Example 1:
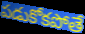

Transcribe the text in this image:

పడుకోకపోతే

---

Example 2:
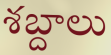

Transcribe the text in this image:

శబ్దాలు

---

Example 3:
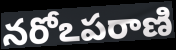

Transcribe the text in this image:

నరోఽపరాణి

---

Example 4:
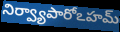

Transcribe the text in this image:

నిర్వ్యాపారోఽహమ్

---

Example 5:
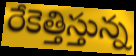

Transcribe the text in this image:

రేకెత్తిస్తున్న